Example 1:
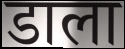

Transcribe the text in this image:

डाला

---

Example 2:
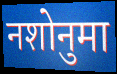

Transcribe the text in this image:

नशोनुमा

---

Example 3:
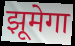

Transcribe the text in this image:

झूमेगा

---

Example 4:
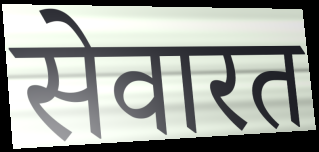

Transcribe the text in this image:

सेवारत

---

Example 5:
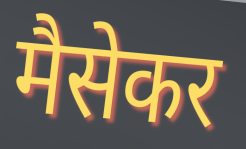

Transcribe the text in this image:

मैसेकर